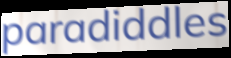
paradiddles